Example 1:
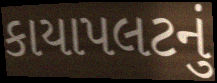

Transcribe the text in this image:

કાયાપલટનું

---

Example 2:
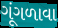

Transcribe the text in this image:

ગૂંગળાવા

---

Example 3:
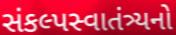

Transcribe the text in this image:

સંકલ્પસ્વાતંત્ર્યનો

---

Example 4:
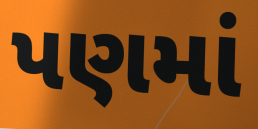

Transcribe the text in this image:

પણમાં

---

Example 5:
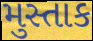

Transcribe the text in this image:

મુસ્તાક